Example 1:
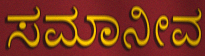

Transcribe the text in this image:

ಸಮಾನೀವ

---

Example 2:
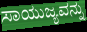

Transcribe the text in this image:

ಸಾಯುಜ್ಯವನ್ನು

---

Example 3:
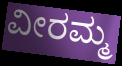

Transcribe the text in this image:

ವೀರಮ್ಮ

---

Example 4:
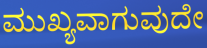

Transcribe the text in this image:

ಮುಖ್ಯವಾಗುವುದೇ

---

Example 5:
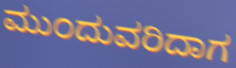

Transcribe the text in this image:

ಮುಂದುವರಿದಾಗ